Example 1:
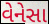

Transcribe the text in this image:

વેનેસા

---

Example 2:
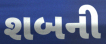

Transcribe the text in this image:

શબની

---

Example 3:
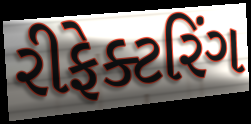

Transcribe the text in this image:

રીફેક્ટરિંગ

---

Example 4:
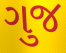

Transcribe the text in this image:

ગુજ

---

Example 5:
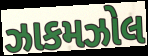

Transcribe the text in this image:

ઝાકમઝોલ